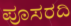
ಪೂಸರದಿ